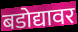
बडोद्यावर